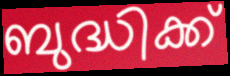
ബുദ്ധിക്ക്